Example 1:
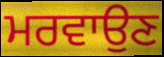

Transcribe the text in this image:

ਮਰਵਾਉਣ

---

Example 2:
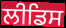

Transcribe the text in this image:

ਲੀਡਿਸ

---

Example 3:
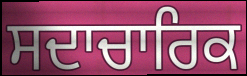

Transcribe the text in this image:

ਸਦਾਚਾਰਿਕ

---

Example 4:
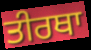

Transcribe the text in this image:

ਤੀਰਥਾ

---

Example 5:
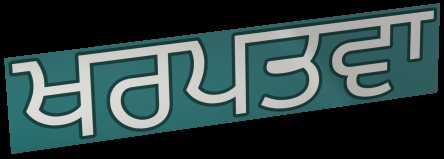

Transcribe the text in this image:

ਖਰਪਤਵਾ